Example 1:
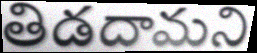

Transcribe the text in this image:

తిడదామని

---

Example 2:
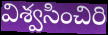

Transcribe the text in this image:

విశ్వసించిరి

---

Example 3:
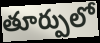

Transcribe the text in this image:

తూర్పులో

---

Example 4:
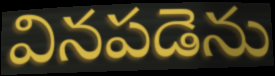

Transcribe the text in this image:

వినపడెను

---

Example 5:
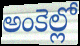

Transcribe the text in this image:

అంకెల్లో